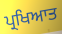
ਪ੍ਰਖਿਆਤ